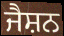
ਜੈਸ਼ਨ